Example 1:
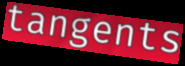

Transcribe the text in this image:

tangents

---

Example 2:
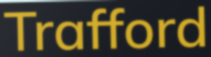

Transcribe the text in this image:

Trafford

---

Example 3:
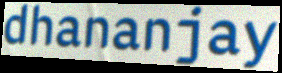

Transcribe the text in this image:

dhananjay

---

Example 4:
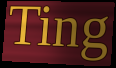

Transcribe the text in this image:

Ting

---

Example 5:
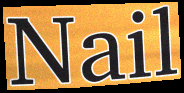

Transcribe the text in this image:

Nail